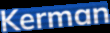
Kerman